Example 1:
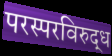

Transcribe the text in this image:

परस्परविरुद्ध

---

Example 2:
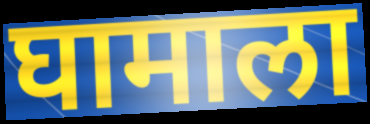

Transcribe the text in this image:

घामाला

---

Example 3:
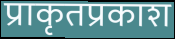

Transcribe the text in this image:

प्राकृतप्रकाश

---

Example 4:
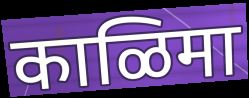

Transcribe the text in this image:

काळिमा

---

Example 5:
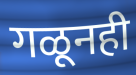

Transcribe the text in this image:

गळूनही